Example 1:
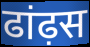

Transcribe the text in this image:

ढांढ़स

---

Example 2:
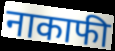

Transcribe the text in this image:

नाकाफी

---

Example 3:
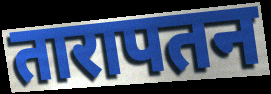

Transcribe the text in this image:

तारापतन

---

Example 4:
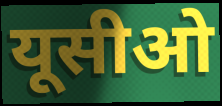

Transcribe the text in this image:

यूसीओ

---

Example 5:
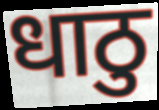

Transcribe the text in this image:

धाठु